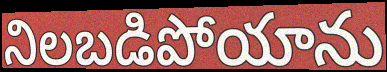
నిలబడిపోయాను